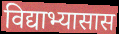
विद्याभ्यासास